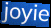
joyie